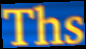
Ths